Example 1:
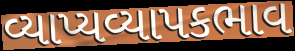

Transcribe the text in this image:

વ્યાપ્યવ્યાપકભાવ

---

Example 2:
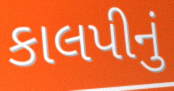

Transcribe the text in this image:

કાલપીનું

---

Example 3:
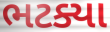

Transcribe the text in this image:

ભટક્યા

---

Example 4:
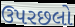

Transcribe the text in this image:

ઉપરછલો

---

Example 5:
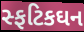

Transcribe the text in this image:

સ્ફટિકઘન